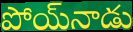
పోయ్‌నాడు